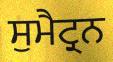
ਸੁਮੈਟ੍ਰਨ